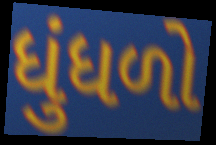
ધુંધળો